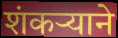
शंकर्‍याने